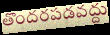
తొందరపడవద్దు